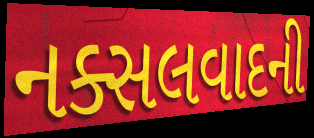
નક્સલવાદની